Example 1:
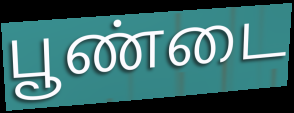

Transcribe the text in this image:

பூண்டை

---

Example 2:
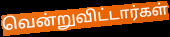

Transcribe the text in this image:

வென்றுவிட்டார்கள்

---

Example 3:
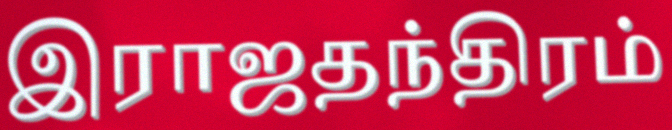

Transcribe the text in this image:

இராஜதந்திரம்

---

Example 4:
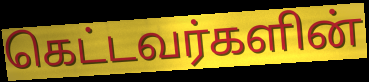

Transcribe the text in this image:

கெட்டவர்களின்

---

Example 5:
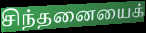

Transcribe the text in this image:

சிந்தனையைக்